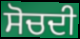
ਸੋਚਦੀ